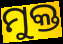
ମୁକ୍ତ